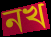
নখ